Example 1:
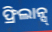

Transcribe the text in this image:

ଫ୍ରିଲାନ୍ସ୍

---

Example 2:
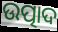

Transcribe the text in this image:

ଉତ୍ପାଦ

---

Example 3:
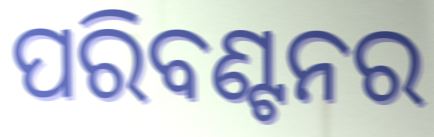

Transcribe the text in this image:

ପରିବଣ୍ଟନର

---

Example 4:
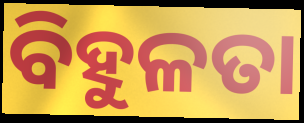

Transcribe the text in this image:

ବିହୁଳତା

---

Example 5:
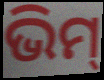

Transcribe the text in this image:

ଭିମ୍